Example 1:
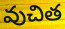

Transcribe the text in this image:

వుచిత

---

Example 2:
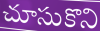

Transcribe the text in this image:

చూసుకొని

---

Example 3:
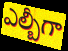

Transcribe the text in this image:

ఎల్బీగా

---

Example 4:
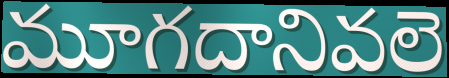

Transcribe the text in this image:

మూగదానివలె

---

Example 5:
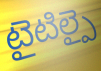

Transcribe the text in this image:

టైటిల్పై